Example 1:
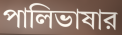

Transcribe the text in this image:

পালিভাষার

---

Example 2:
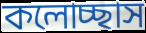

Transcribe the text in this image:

কলোচ্ছাস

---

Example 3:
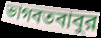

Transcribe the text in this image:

ভাগবতবাবুর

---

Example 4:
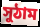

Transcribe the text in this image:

সুঠাম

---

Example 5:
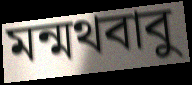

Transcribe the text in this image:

মন্মথবাবু